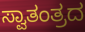
ಸ್ವಾತಂತ್ರದ